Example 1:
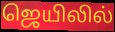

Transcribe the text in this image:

ஜெயிலில்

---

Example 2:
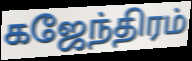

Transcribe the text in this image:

கஜேந்திரம்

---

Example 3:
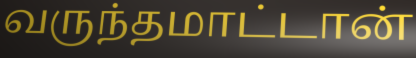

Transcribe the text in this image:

வருந்தமாட்டான்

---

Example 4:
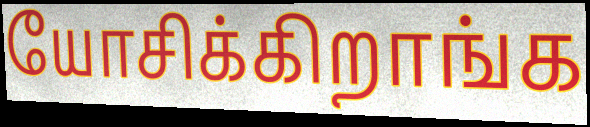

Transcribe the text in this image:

யோசிக்கிறாங்க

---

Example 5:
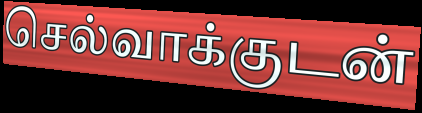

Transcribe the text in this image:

செல்வாக்குடன்